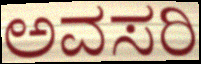
ಅವಸರಿ